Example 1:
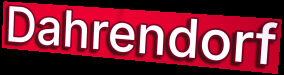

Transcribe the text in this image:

Dahrendorf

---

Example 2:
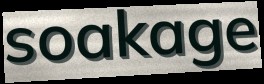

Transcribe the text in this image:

soakage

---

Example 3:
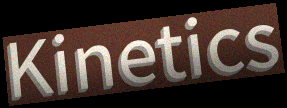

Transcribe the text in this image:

Kinetics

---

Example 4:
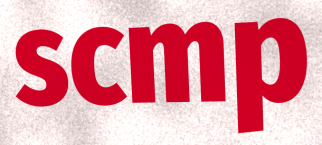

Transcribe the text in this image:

scmp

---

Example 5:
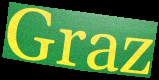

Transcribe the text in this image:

Graz